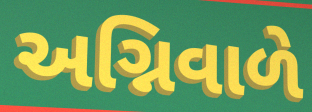
અગ્નિવાળે